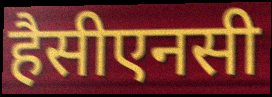
हैसीएनसी